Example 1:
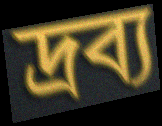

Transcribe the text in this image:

দ্ৰব্য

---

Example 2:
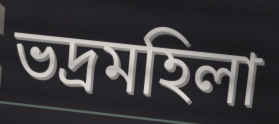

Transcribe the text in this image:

ভদ্ৰমহিলা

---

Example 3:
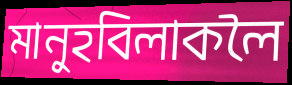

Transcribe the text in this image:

মানুহবিলাকলৈ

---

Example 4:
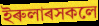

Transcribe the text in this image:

ইৰুলাৰসকলে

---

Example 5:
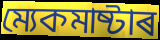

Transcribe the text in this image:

ম্যেকমাষ্টাৰ